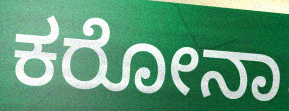
ಕರೋನಾ